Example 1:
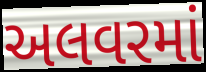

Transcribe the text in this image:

અલવરમાં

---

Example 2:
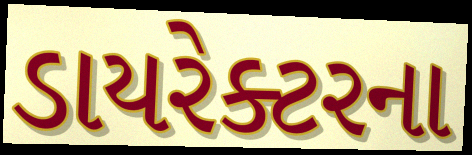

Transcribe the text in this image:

ડાયરેક્ટરના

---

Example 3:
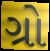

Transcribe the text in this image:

ગ્રો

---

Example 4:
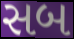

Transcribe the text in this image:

સબ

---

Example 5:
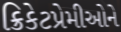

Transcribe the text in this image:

ક્રિકેટપ્રેમીઓને